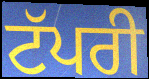
ਟੱਪਰੀ